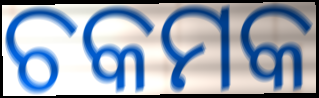
ଚକମକ